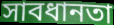
সাবধানতা